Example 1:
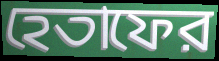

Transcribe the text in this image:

হেতাফের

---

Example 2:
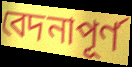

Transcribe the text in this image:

বেদনাপূর্ণ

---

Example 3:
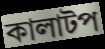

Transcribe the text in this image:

কালাটপ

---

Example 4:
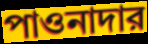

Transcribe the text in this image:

পাওনাদার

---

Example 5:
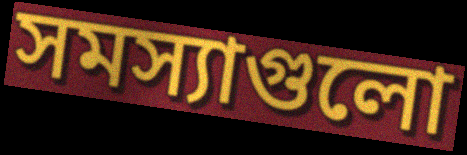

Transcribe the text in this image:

সমস্যাগুলো